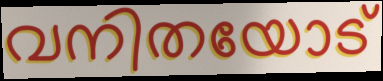
വനിതയോട്